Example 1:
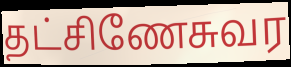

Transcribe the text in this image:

தட்சிணேசுவர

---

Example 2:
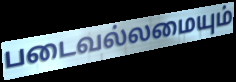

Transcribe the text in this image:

படைவல்லமையும்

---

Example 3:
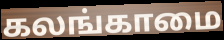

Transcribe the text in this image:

கலங்காமை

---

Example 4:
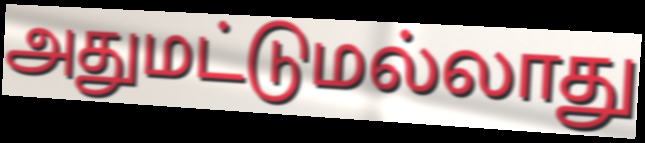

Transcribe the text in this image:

அதுமட்டுமல்லாது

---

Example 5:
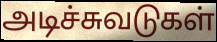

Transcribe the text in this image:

அடிச்சுவடுகள்